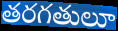
తరగతులూ